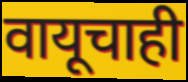
वायूचाही